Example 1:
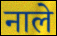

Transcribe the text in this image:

नाले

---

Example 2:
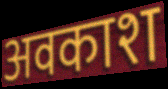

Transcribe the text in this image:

अवकाश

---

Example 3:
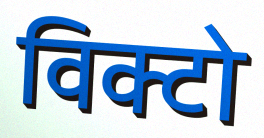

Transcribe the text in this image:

विक्टो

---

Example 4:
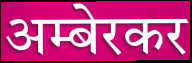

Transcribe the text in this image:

अम्बेरकर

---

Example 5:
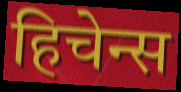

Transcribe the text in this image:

हिचेन्स